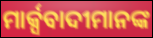
ମାର୍କ୍ସବାଦୀମାନଙ୍କ